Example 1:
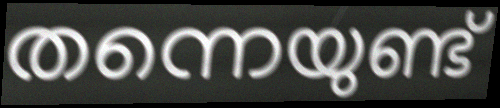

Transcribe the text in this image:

തന്നെയുണ്ട്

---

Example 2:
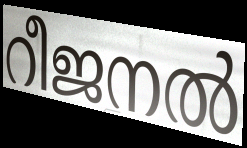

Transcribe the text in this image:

റീജനൽ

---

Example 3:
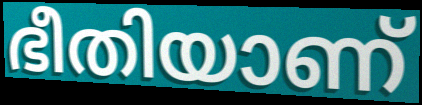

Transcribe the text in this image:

ഭീതിയാണ്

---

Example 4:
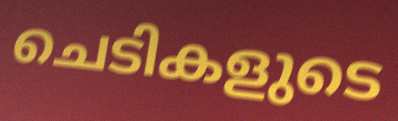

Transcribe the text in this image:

ചെടികളുടെ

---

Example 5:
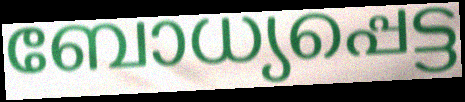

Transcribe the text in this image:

ബോധ്യപ്പെട്ട